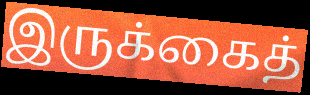
இருக்கைத்